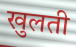
खुलती